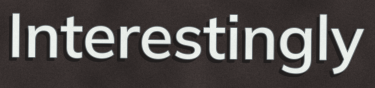
Interestingly